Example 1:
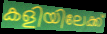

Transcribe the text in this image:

കളിയിലേക്ക്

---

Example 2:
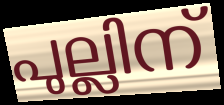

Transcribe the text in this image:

പുല്ലിന്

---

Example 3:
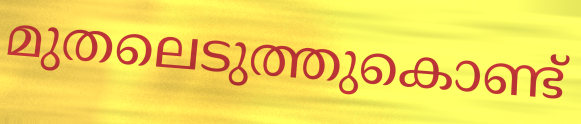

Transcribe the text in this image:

മുതലെടുത്തുകൊണ്ട്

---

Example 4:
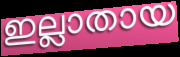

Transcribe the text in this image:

ഇല്ലാതായ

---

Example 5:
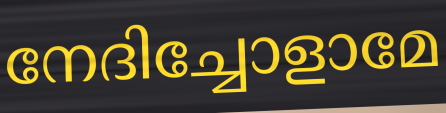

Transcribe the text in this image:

നേദിച്ചോളാമേ